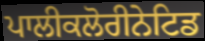
ਪਾਲੀਕਲੋਰੀਨੇਟਿਡ